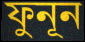
ফুনূন